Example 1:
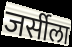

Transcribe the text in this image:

जर्सीला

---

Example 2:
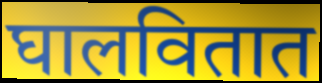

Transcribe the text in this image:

घालवितात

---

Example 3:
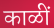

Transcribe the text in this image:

काळीं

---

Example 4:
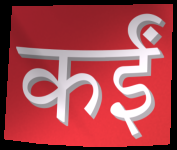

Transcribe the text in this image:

कईं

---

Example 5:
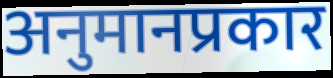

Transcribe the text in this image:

अनुमानप्रकार